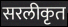
सरलीकृत